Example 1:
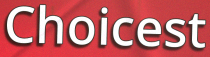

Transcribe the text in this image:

Choicest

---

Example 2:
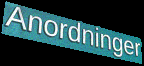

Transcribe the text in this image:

Anordninger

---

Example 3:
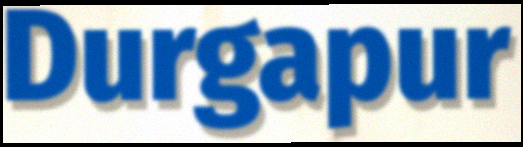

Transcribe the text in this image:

Durgapur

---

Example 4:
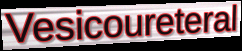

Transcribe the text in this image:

Vesicoureteral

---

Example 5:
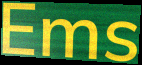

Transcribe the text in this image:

Ems